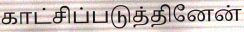
காட்சிப்படுத்தினேன்